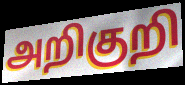
அறிகுறி